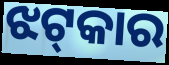
ଝଟ୍‍କାର